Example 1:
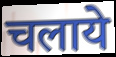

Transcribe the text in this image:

चलाये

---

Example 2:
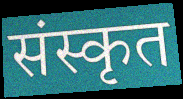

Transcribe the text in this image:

संस्कृत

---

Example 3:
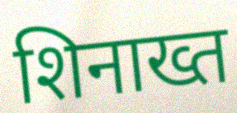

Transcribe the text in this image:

शिनाख्त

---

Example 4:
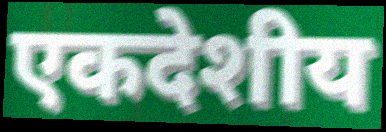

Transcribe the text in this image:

एकदेशीय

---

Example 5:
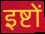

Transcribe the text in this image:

इष्टों